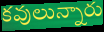
కవులున్నారు